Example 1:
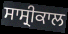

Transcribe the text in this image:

ਸਾਸ੍ਰੀਕਾਲ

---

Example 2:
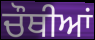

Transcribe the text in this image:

ਚੌਥੀਆਂ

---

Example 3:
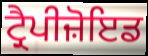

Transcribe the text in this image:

ਟ੍ਰੈਪੀਜ਼ੋਇਡ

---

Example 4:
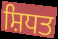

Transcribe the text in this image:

ਸ਼ਿਧਤ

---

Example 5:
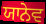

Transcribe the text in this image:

ਯਾਨੇਵ